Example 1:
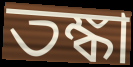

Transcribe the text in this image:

তঙ্কা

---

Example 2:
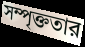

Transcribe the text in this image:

সম্পৃক্ততার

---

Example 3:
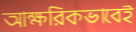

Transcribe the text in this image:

আক্ষরিকভাবেই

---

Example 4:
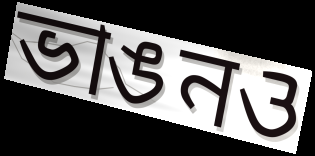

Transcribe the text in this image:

ভাঙনও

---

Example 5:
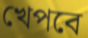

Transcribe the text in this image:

খেপবে